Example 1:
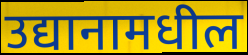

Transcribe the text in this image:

उद्यानामधील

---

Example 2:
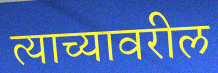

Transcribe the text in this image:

त्याच्यावरील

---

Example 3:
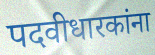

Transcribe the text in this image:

पदवीधारकांना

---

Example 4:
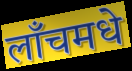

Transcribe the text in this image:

लाँचमधे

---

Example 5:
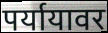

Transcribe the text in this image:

पर्यायावर